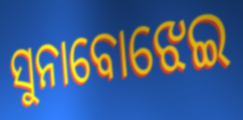
ସୁନାବୋଝେଇ